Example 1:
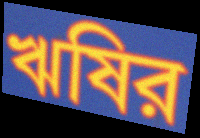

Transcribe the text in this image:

ঋষির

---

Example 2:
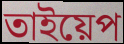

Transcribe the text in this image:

তাইয়েপ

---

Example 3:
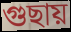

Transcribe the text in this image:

গুছায়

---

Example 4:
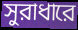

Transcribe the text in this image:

সুরাধারে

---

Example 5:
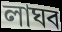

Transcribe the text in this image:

লাঘব